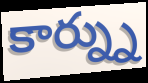
కార్న్ను